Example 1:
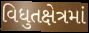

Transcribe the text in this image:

વિધુતક્ષેત્રમાં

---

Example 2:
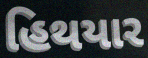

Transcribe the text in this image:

હિથયાર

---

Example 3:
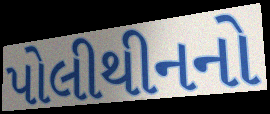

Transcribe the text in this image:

પોલીથીનનો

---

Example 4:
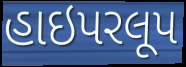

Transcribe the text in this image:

હાઇપરલૂપ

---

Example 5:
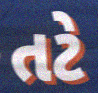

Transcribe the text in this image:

તટે